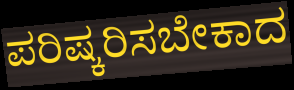
ಪರಿಷ್ಕರಿಸಬೇಕಾದ